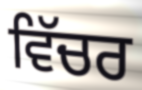
ਵਿੱਚਰ